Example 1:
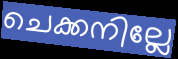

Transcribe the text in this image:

ചെക്കനില്ലേ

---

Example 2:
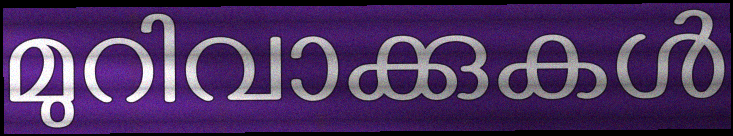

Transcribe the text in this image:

മുറിവാക്കുകൾ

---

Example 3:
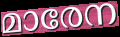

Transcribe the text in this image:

മാരേന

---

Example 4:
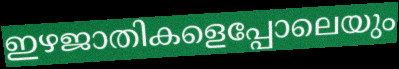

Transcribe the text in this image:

ഇഴജാതികളെപ്പോലെയും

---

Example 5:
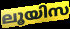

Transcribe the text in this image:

ലൂയിസ